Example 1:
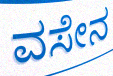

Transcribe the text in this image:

ವಸೇನ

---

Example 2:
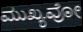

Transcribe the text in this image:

ಮುಖ್ಯವೋ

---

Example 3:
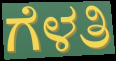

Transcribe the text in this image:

ಗೆಳತಿ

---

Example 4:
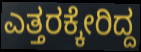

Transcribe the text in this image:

ಎತ್ತರಕ್ಕೇರಿದ್ದ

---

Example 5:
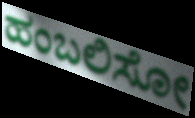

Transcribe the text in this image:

ಹಂಬಲಿಸೋ